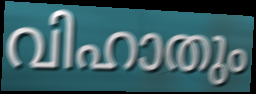
വിഹാതും